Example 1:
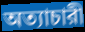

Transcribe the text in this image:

অত্যাচারী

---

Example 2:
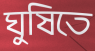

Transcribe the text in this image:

ঘুষিতে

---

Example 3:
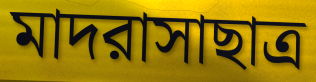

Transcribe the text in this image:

মাদরাসাছাত্র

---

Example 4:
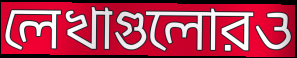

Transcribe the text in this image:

লেখাগুলোরও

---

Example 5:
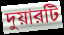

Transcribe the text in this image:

দুয়ারটি